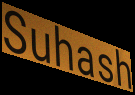
Suhash